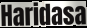
Haridasa